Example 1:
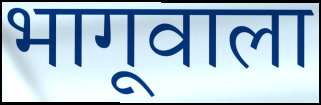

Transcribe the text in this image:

भागूवाला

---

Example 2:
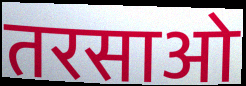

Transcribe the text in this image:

तरसाओ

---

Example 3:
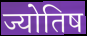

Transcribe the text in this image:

ज्योतिष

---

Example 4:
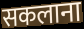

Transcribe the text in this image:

सकलाना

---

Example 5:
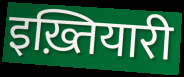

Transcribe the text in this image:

इख़्तियारी